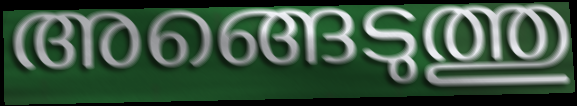
അങ്ങെടുത്തു